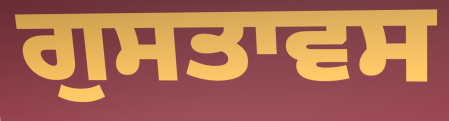
ਗੁਸਤਾਵਸ